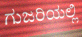
ಗುಜರಿಯಲ್ಲಿ